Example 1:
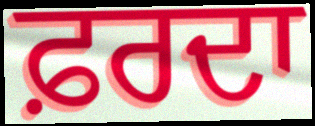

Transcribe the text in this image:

ਫ਼ਰਦਾ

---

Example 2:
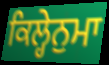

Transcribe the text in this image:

ਕਿਲ੍ਹੇਨੁਮਾ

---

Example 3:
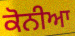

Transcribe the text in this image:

ਕੋਨੀਆ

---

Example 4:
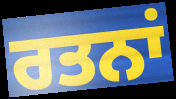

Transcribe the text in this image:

ਰਤਨਾਂ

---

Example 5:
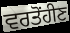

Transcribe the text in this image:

ਵਰਤੋਂਹੀਣ